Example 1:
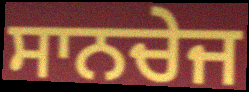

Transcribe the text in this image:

ਸਾਨਚੇਜ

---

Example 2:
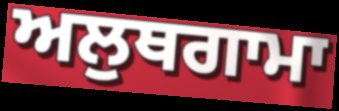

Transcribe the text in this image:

ਅਲੁਥਗਾਮਾ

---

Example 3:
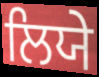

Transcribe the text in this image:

ਲਿਯੇ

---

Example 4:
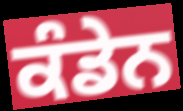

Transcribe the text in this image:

ਕੰਡੇਨ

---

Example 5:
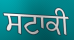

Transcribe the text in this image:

ਸਟਾਕੀ